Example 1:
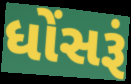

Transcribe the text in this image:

ધોંસરૂં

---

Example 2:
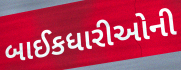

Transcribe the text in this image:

બાઈકધારીઓની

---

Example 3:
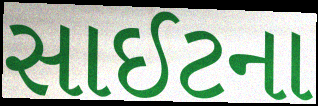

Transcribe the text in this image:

સાઈટના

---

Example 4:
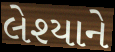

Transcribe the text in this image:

લેશ્યાને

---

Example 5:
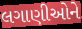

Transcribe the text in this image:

લગાણીઓને